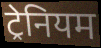
ट्रेनियम